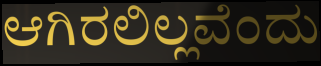
ಆಗಿರಲಿಲ್ಲವೆಂದು